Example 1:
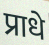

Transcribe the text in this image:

प्राधे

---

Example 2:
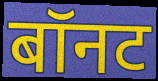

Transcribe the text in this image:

बॉनट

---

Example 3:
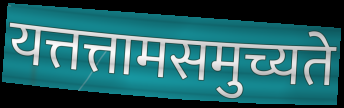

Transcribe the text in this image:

यत्तत्तामसमुच्यते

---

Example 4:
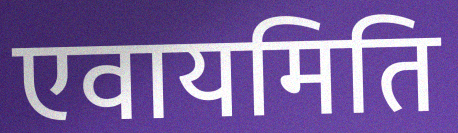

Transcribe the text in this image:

एवायमिति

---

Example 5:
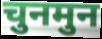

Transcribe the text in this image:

चुनमुन